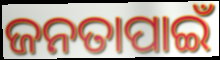
ଜନତାପାଇଁ